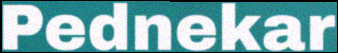
Pednekar